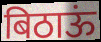
बिठाऊं